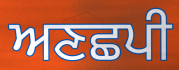
ਅਣਛਪੀ